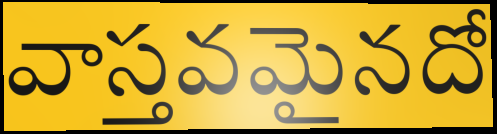
వాస్తవమైనదో